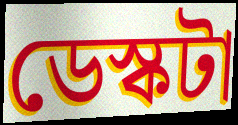
ডেস্কটা